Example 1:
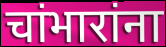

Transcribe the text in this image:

चांभारांना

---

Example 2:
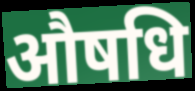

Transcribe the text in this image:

औषधि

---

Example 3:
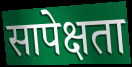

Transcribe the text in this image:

सापेक्षता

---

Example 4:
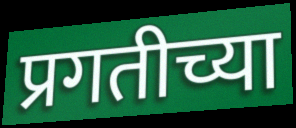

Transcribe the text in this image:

प्रगतीच्या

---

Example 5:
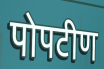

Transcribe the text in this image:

पोपटीण